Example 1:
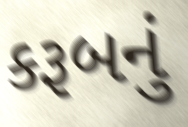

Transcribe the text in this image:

કરૂબનું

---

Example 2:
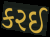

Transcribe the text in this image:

કરઈ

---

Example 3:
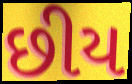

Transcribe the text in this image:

છીય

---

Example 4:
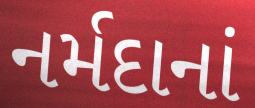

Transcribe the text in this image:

નર્મદાનાં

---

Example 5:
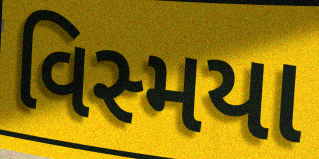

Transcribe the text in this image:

વિસ્મયા